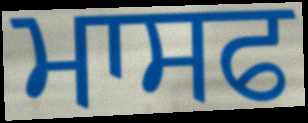
ਮਾਸਫ